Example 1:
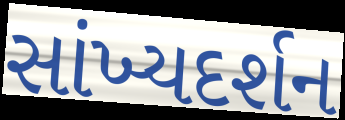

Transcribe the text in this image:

સાંખ્યદર્શન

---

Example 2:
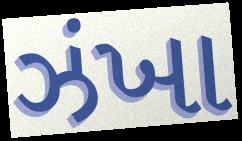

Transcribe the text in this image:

ઝંખા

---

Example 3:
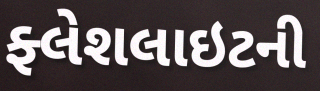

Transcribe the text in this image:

ફ્લેશલાઇટની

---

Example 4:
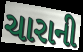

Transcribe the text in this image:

ચારાની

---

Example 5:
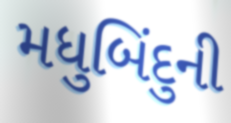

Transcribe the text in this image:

મધુબિંદુની